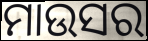
ମାଉସର